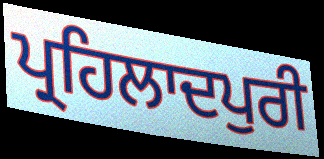
ਪ੍ਰਹਿਲਾਦਪੁਰੀ